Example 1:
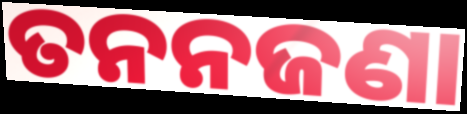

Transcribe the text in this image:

ତନନଜଣା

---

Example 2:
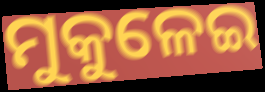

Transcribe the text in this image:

ମୁକୁଳେଇ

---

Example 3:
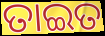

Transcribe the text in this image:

ତାଇତ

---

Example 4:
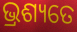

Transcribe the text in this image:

ଭ୍ରଶ୍ୟତେ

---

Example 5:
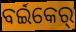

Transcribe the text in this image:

ବର୍ଇକେର୍